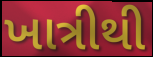
ખાત્રીથી